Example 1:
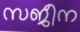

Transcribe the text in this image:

സജീന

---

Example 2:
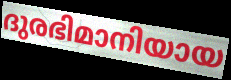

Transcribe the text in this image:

ദുരഭിമാനിയായ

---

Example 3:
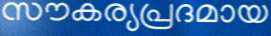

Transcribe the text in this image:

സൗകര്യപ്രദമായ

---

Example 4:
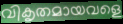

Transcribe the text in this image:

വികൃതമായവളെ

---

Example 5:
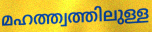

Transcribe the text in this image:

മഹത്ത്വത്തിലുള്ള